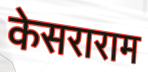
केसराराम